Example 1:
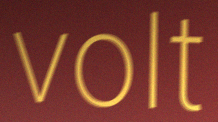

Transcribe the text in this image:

volt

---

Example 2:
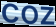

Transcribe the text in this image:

coz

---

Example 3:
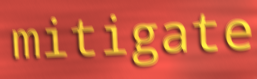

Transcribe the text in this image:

mitigate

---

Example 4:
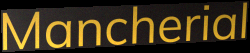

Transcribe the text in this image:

Mancherial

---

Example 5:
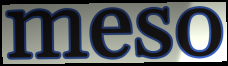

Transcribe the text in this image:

meso